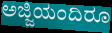
ಅಜ್ಜಿಯಂದಿರೂ